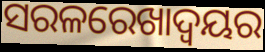
ସରଳରେଖାଦ୍ବୟର